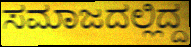
ಸಮಾಜದಲ್ಲಿದ್ದ